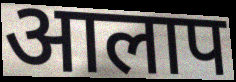
आलाप